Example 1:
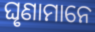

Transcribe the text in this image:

ଘୃଣାମାନେ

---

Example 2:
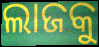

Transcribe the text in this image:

ଲାଜକୁ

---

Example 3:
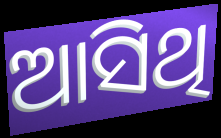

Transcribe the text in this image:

ଆସିଥି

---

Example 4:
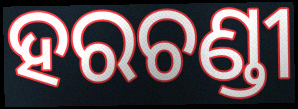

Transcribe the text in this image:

ହରଚଣ୍ଡୀ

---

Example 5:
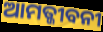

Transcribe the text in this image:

ଆମତ୍ଜୀବନୀ